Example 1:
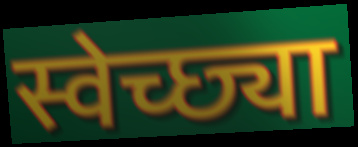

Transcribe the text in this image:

स्वेच्छ्या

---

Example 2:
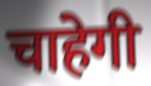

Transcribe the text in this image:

चाहेगी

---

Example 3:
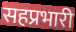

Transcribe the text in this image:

सहप्रभारी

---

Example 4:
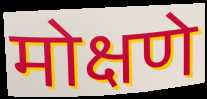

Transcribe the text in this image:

मोक्षणे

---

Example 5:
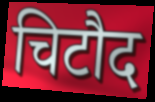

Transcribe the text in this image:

चिटौद